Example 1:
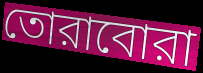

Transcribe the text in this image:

তোরাবোরা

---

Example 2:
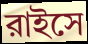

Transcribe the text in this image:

রাইসে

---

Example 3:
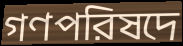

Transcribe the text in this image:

গণপরিষদে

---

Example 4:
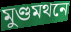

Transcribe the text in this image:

মুণ্ডমথনে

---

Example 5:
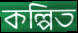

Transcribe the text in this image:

কল্পিত